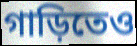
গাড়িতেও